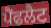
ਪੈਂਫਲੈਟ